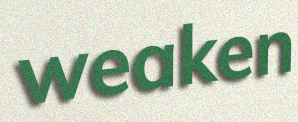
weaken